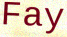
Fay